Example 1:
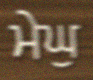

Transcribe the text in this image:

ਮੇਘੁ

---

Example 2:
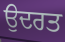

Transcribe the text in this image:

ਉਦਰਤ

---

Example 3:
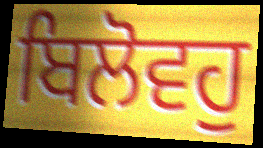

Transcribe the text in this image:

ਬਿਲੋਵਹੁ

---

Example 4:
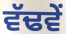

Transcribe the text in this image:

ਵੱਢਵੇਂ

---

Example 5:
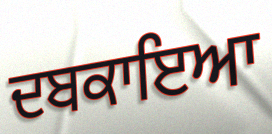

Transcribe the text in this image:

ਦਬਕਾਇਆ